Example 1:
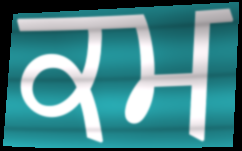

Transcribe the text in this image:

ਕਮ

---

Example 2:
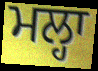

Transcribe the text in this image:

ਮਲ੍ਹਾ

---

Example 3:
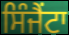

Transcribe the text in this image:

ਸਿੰਜੈਂਟਾ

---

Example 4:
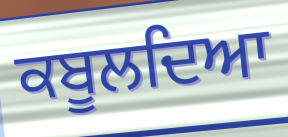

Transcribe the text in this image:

ਕਬੂਲਦਿਆ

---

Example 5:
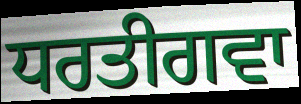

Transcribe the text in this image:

ਧਰਤੀਗਵਾ